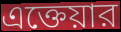
এক্তেয়ার